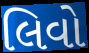
લિવો